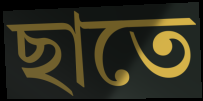
ছাতে